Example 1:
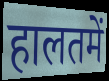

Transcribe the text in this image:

हालतमें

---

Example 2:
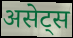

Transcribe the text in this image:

असेट्स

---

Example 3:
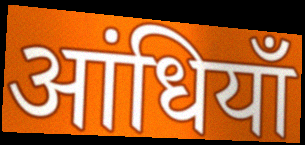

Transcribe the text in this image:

आंधियाँ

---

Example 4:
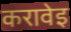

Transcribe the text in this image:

करावेइ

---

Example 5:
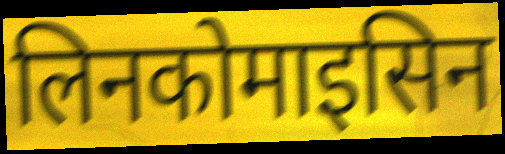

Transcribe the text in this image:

लिनकोमाइसिन